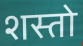
शस्तो